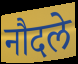
नौदले